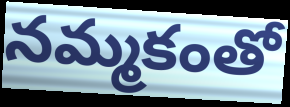
నమ్మకంతో